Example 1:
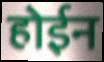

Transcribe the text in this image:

होईन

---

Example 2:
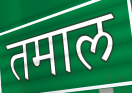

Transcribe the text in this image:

तमाल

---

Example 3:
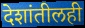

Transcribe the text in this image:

देशांतीलही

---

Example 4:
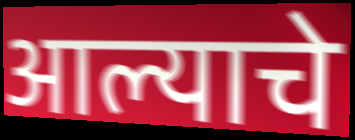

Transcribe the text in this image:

आल्याचे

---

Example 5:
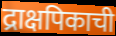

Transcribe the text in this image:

द्राक्षपिकाची